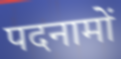
पदनामों